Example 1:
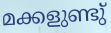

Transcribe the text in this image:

മക്കളുണ്ടു്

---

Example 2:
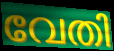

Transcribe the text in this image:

വേതി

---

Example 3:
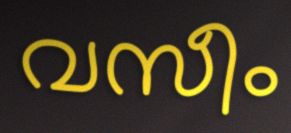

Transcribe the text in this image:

വസീം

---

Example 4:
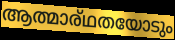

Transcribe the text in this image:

ആത്മാര്ഥതയോടും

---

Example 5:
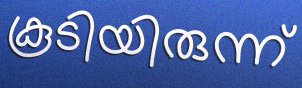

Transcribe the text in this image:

കൂടിയിരുന്ന്